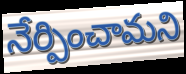
నేర్పించామని